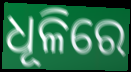
ଧୂଳିରେ